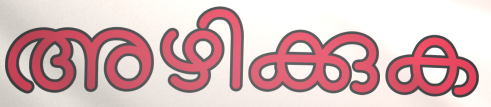
അഴിക്കുക